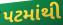
પટમાંથી